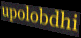
upolobdhi